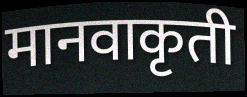
मानवाकृती